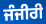
ਜੰਜੀਰੀ